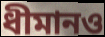
ধীমানও